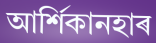
আৰ্শিকানহাৰ